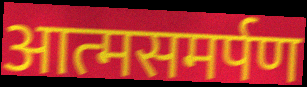
आत्‍मसमर्पण